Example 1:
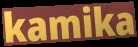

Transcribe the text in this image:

kamika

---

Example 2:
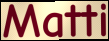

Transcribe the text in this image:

Matti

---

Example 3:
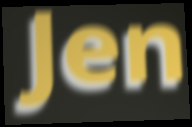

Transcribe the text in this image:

Jen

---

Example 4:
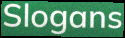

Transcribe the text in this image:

Slogans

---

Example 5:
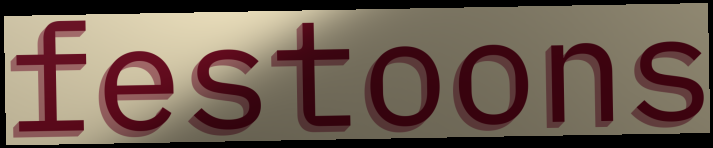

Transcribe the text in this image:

festoons